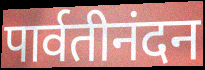
पार्वतीनंदन